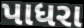
પાધરા